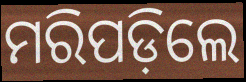
ମରିପଡ଼ିଲେ